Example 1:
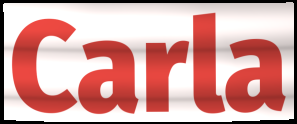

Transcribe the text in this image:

Carla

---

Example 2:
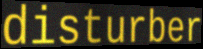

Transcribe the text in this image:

disturber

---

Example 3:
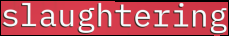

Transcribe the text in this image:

slaughtering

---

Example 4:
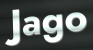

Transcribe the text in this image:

Jago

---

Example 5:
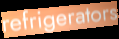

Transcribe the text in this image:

refrigerators